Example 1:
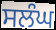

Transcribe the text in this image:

ਸਲੰਘ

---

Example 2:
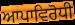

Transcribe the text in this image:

ਆਪਾਵਿਰੋਧੀ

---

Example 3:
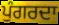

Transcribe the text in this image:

ਪੁੰਗਰਦਾ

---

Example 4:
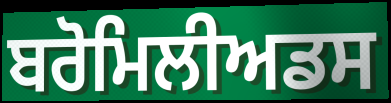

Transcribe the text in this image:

ਬਰੋਮਿਲੀਅਡਸ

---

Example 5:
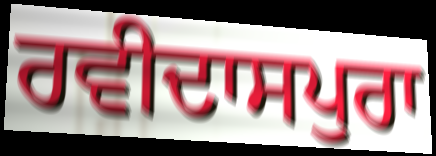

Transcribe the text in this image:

ਰਵੀਦਾਸਪੁਰਾ